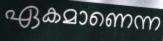
ഏകമാണെന്ന